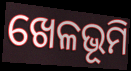
ଖେଳଭୂମି